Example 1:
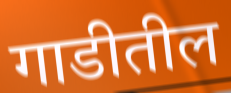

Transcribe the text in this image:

गाडीतील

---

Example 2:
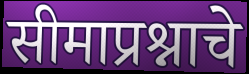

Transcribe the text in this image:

सीमाप्रश्नाचे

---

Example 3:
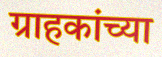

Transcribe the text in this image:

ग्राहकांच्या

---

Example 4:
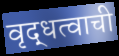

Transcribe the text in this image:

वृद्धत्वाची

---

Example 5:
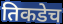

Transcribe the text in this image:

तिकडेच